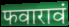
फवारावं